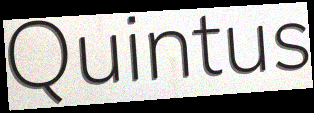
Quintus